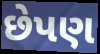
છેપણ